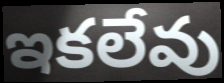
ఇకలేవు